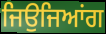
ਜਿਉਜਿਆਂਗ